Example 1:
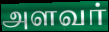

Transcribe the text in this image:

அளவர்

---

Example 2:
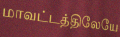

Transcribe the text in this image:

மாவட்டத்திலேயே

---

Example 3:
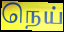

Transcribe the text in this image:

நெய்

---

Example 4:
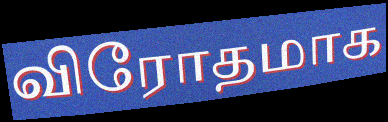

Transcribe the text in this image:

விரோதமாக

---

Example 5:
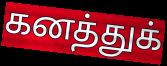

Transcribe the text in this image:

கனத்துக்